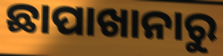
ଛାପାଖାନାରୁ